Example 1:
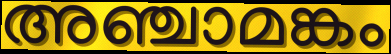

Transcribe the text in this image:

അഞ്ചാമങ്കം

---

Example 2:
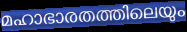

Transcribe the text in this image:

മഹാഭാരതത്തിലെയും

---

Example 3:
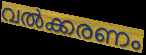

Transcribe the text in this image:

വൽക്കരണം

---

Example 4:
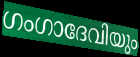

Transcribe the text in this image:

ഗംഗാദേവിയും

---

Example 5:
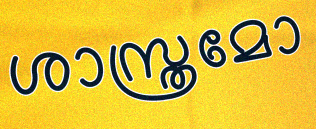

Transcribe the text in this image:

ശാസ്ത്രമോ